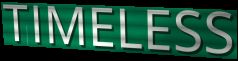
TIMELESS